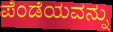
ಪೆಂಡೆಯವನ್ನು